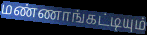
மண்ணாங்கட்டியும்